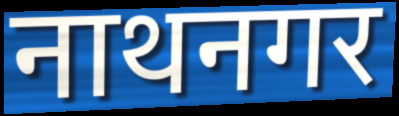
नाथनगर